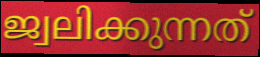
ജ്വലിക്കുന്നത്